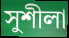
সুশীলা